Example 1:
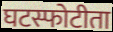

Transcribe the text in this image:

घटस्फोटीता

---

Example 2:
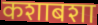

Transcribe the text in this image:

कशाबशा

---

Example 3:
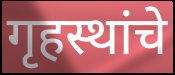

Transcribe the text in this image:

गृहस्थांचे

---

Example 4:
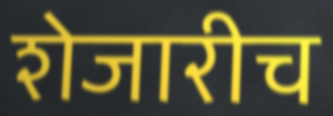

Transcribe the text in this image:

शेजारीच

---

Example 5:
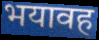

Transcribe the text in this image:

भयावह